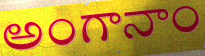
అంగానాం